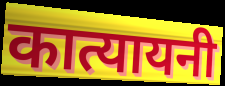
कात्यायनी